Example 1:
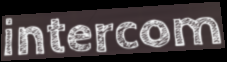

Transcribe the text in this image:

intercom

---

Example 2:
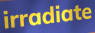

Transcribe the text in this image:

irradiate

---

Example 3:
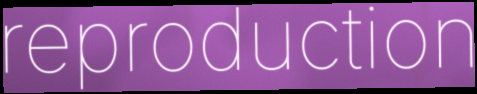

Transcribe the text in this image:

reproduction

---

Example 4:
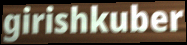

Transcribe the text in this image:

girishkuber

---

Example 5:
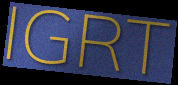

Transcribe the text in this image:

IGRT